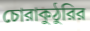
চোরাকুঠুরির